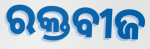
ରକ୍ତବୀଜ